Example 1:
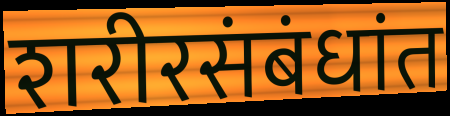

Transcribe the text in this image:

शरीरसंबंधांत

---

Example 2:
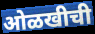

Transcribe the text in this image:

ओळखीची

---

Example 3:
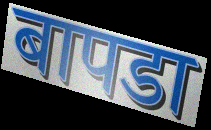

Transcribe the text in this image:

बापडा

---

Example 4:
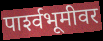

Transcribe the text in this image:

पार्श्‍वभूमीवर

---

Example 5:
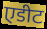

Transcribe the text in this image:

एडीट